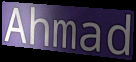
Ahmad